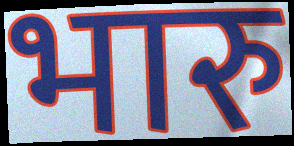
भारु